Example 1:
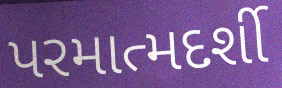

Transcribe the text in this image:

પરમાત્મદર્શી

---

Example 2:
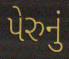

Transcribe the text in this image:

પેરુનું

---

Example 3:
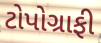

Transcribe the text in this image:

ટોપોગ્રાફી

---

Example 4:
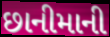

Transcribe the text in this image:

છાનીમાની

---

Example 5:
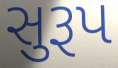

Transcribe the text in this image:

સુરૂપ